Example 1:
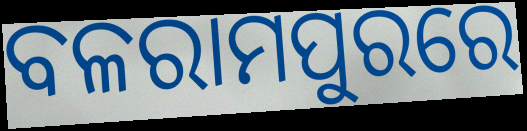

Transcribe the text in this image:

ବଳରାମପୁରରେ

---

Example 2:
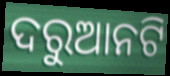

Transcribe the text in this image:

ଦରୁଆନଟି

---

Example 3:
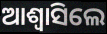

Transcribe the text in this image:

ଆଶ୍ୱାସିଲେ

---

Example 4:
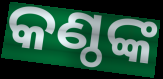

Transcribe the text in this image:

କଣ୍ଠଙ୍କ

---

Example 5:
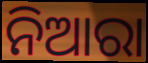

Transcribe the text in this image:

ନିଆରା